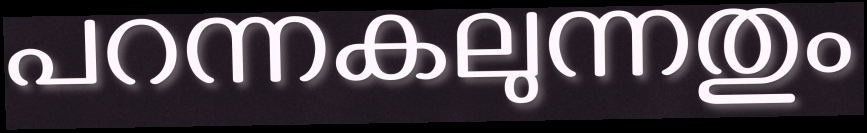
പറന്നകലുന്നതും